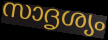
സാദൃശ്യം